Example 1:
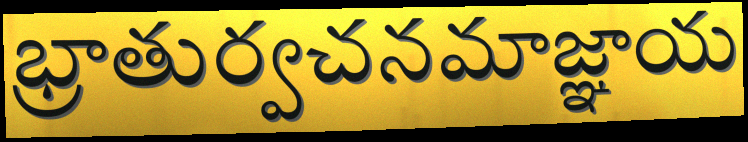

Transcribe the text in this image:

భ్రాతుర్వచనమాజ్ఞాయ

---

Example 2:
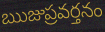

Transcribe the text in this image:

ఋజుప్రవర్తనం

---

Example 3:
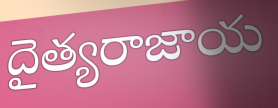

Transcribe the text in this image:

దైత్యరాజాయ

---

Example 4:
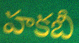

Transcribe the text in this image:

హకబీ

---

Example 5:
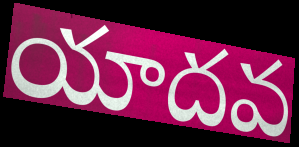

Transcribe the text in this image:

యాదవ